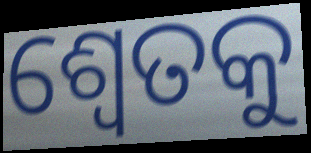
ଶ୍ଵେତକୁ